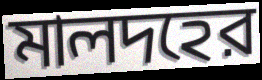
মালদহের